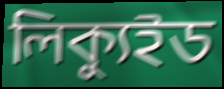
লিক্যুইড